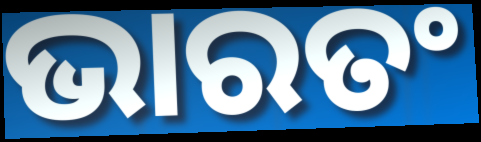
ଭାରତଂ